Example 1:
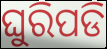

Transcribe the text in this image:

ଘୁରିପଡି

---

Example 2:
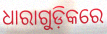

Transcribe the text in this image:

ଧାରାଗୁଡ଼ିକରେ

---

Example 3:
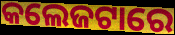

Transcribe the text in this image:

କଲେଜଟାରେ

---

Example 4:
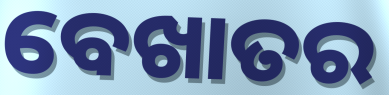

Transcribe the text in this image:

ବେଖାତର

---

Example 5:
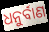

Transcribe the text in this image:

ଧନୁର୍ବାଣ